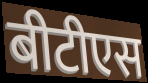
बीटीएस